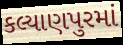
કલ્યાણપુરમાં